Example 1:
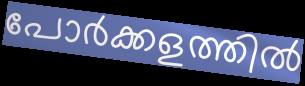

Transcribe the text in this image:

പോർക്കളത്തിൽ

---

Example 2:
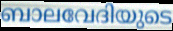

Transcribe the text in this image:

ബാലവേദിയുടെ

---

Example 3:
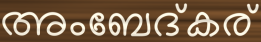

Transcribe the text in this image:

അംബേദ്കര്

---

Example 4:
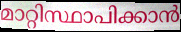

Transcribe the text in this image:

മാറ്റിസ്ഥാപിക്കാൻ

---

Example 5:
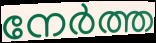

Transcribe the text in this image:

നേർത്ത